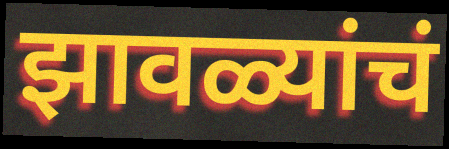
झावळ्यांचं